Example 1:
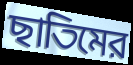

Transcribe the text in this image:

ছাতিমের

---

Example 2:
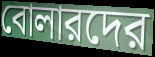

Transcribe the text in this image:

বোলারদের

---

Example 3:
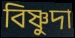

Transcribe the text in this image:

বিষ্ণুদা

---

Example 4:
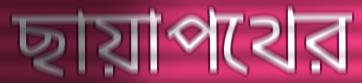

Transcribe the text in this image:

ছায়াপথের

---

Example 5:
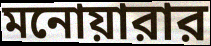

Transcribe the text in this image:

মনোয়ারার